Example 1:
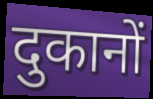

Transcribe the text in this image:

दुकानों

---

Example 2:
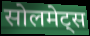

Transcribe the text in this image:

सोलमेट्स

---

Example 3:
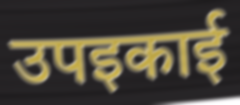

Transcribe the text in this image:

उपइकाई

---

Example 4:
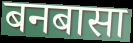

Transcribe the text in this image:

बनबासा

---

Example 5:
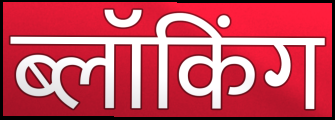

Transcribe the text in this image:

ब्लॉकिंग